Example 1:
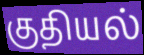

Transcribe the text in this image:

குதியல்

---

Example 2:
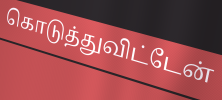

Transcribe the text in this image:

கொடுத்துவிட்டேன்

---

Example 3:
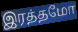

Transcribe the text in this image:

இரத்தமோ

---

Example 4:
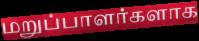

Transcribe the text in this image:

மறுப்பாளர்களாக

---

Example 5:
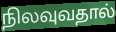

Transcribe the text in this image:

நிலவுவதால்